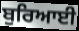
ਬੁਰਿਆਈ